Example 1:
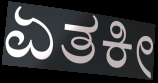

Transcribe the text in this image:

ಏತಕೀ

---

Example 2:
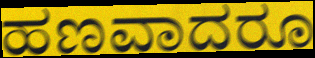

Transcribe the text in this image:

ಹಣವಾದರೂ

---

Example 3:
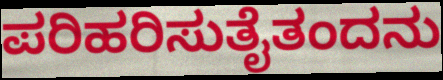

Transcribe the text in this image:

ಪರಿಹರಿಸುತೈತಂದನು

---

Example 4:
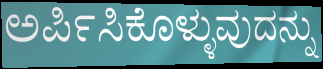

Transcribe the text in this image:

ಅರ್ಪಿಸಿಕೊಳ್ಳುವುದನ್ನು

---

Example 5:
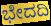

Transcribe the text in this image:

ಭೇದದಿ